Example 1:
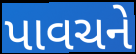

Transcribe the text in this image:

પાવચને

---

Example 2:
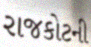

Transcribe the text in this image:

રાજકોટની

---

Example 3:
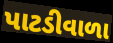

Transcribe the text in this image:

પાટડીવાળા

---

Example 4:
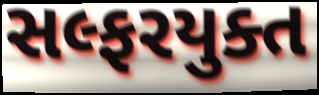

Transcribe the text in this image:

સલ્ફરયુક્ત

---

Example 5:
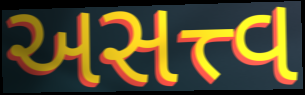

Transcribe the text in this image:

અસત્ત્વ